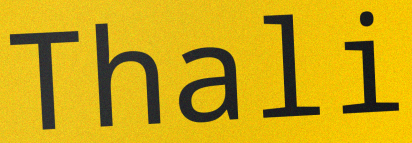
Thali